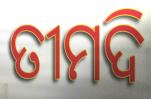
ତୀମଦି